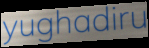
yughadiru